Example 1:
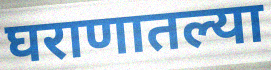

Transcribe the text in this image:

घराणातल्या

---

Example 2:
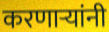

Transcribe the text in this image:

करणाऱ्यांनी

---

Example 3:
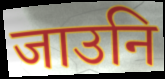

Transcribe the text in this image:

जाउनि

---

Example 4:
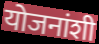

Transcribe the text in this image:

योजनांशी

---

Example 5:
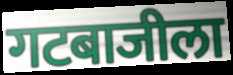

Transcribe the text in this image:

गटबाजीला